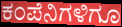
ಕಂಪೆನಿಗಳಿಗೂ